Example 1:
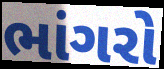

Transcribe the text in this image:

ભાંગરો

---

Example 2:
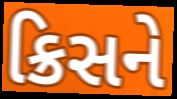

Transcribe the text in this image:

ક્રિસને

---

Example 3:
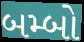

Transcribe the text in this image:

બમ્બો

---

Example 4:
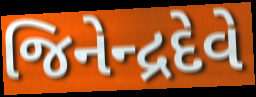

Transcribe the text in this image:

જિનેન્દ્રદેવે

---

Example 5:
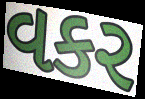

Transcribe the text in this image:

વકર